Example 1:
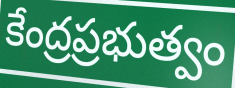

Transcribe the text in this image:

కేంద్రప్రభుత్వం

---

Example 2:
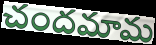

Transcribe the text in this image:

చందమామ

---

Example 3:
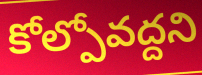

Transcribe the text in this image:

కోల్పోవద్దని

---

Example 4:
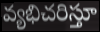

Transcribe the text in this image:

వ్యభిచరిస్తూ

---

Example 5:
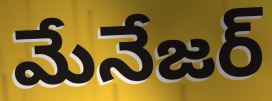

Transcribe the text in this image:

మేనేజర్